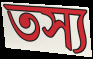
তস্য